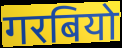
गरबियो